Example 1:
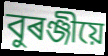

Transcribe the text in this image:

বুৰঞ্জীয়ে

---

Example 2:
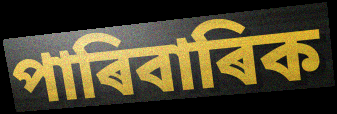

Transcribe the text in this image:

পাৰিবাৰিক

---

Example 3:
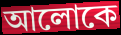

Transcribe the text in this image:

আলোকে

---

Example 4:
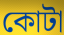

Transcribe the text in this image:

কোটা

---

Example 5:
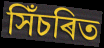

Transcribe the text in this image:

সিঁচৰিত